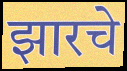
झारचे